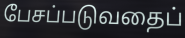
பேசப்படுவதைப்